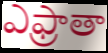
ఎఫ్రాతా